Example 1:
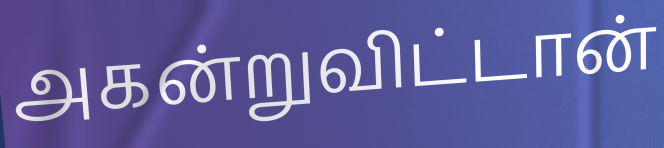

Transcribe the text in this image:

அகன்றுவிட்டான்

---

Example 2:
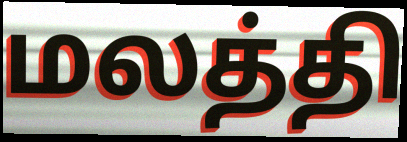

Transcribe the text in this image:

மலத்தி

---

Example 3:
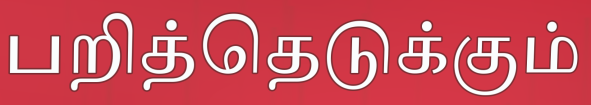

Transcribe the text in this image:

பறித்தெடுக்கும்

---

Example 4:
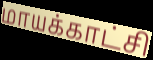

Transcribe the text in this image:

மாயக்காட்சி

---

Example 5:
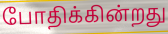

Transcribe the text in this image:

போதிக்கின்றது